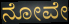
ನೋವೇ